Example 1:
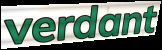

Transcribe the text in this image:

verdant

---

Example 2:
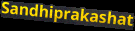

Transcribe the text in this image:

Sandhiprakashat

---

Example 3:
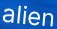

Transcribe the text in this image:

alien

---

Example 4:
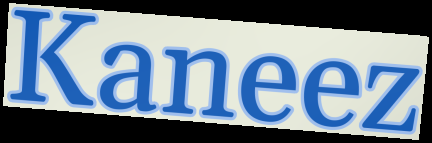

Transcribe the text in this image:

Kaneez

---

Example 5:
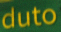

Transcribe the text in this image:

duto